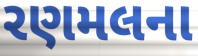
રણમલના